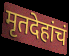
मृतदेहांचं